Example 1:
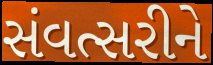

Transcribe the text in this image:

સંવત્સરીને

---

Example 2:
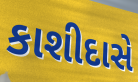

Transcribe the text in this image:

કાશીદાસે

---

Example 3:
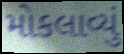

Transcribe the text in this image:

મોકલાવ્યું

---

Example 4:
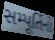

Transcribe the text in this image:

સમ્પૂર્તિનો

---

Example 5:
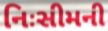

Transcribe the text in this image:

નિઃસીમની